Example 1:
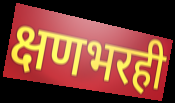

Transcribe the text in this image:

क्षणभरही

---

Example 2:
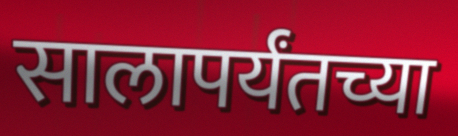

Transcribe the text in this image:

सालापर्यंतच्या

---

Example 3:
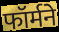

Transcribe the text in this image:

फॉर्मने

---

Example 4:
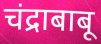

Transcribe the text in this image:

चंद्राबाबू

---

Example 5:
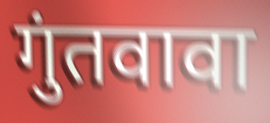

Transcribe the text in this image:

गुंतवावा